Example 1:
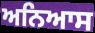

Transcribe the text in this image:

ਅਨਿਆਸ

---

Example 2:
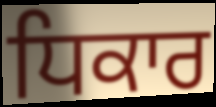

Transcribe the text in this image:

ਧਿਕਾਰ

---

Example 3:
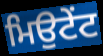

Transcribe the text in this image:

ਮਿਉਟੇਂਟ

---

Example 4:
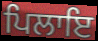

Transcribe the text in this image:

ਪਿਲਾਇ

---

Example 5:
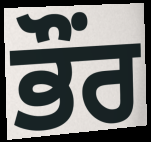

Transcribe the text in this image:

ਭੌਂਰ